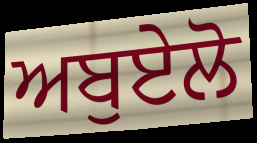
ਅਬੁਏਲੋ